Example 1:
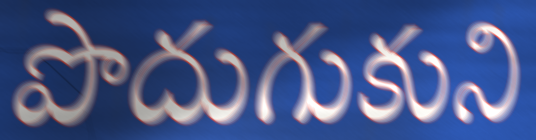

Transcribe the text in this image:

పొదుగుకుని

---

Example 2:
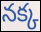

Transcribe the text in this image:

నక్క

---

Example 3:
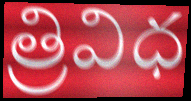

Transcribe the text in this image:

త్రివిధ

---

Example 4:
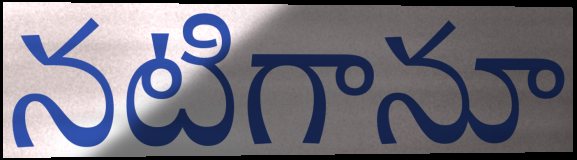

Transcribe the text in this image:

నటిగానూ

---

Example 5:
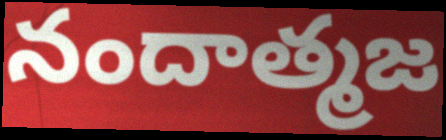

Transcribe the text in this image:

నందాత్మజ